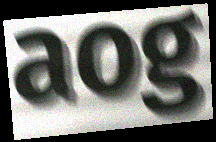
aog